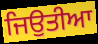
ਜਿਉਤੀਆ